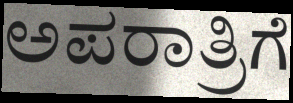
ಅಪರಾತ್ರಿಗೆ